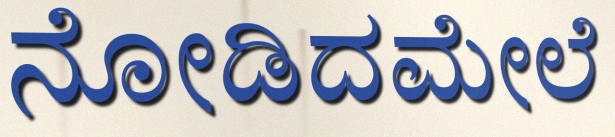
ನೋಡಿದಮೇಲೆ